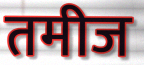
तमीज